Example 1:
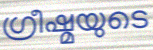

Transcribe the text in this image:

ഗ്രീഷ്മയുടെ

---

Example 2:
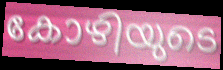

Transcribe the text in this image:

കോഴിയുടെ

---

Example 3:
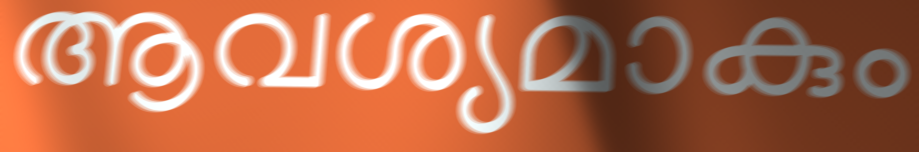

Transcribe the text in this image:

ആവശ്യമാകും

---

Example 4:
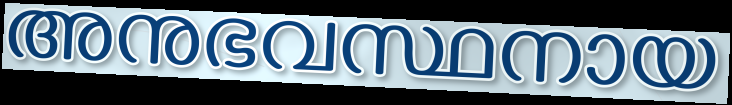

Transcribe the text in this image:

അനുഭവസ്ഥനായ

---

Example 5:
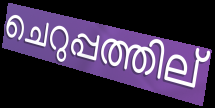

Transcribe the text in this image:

ചെറുപ്പത്തില്